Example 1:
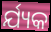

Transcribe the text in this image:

ର୍ଯ୍ୟକ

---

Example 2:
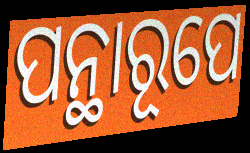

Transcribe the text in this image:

ପନ୍ଥାରୂପେ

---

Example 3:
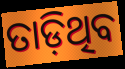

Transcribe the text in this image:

ତାଡ଼ିଥିବ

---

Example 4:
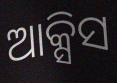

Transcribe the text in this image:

ଆକ୍ସିସ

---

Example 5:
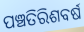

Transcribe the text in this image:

ପଞ୍ଚତିରିଶବର୍ଷ